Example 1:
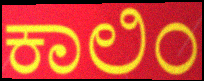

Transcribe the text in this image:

ಕಾಲಿಂ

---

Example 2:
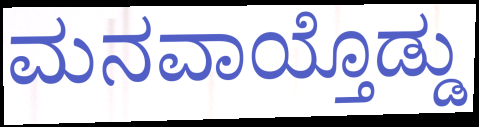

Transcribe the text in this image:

ಮನವಾಯ್ತೊಡ್ಡು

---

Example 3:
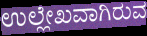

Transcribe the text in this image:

ಉಲ್ಲೇಖವಾಗಿರುವ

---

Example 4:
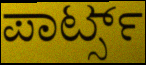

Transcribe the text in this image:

ಪಾರ್ಟ್ಸ್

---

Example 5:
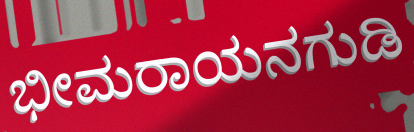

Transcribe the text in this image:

ಭೀಮರಾಯನಗುಡಿ